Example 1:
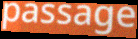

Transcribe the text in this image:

passage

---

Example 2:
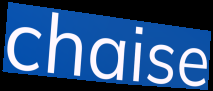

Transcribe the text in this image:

chaise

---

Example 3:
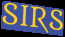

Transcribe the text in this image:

SIRS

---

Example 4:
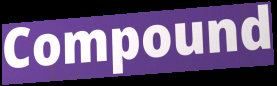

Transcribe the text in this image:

Compound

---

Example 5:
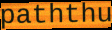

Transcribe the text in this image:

paththu